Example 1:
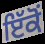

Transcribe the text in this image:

ਇੱਕੋਂ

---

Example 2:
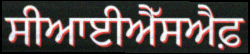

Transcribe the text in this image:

ਸੀਆਈਐੱਸਐਫ਼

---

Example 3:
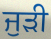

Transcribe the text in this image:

ਜੁੜੀ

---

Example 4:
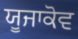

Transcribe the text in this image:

ਯੂਜਾਕੋਵ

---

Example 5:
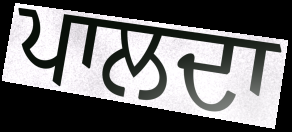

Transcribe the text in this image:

ਪਾਲਦਾ